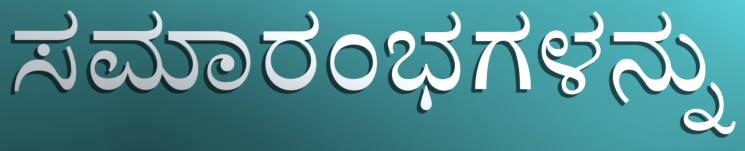
ಸಮಾರಂಭಗಳನ್ನು